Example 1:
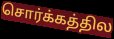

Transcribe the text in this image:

சொர்க்கத்தில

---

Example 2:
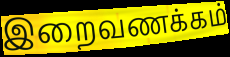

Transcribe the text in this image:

இறைவணக்கம்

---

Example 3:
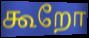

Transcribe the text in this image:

கூறோ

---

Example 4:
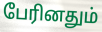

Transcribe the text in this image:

பேரினதும்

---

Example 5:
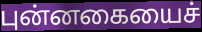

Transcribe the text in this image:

புன்னகையைச்